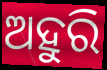
ଅହୁରି